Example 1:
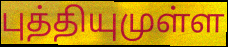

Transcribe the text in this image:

புத்தியுமுள்ள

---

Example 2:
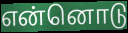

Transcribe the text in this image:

என்னொடு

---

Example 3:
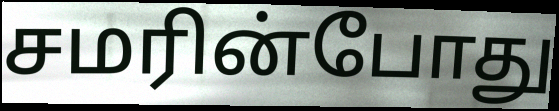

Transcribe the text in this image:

சமரின்போது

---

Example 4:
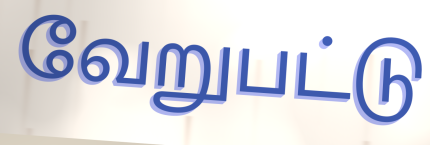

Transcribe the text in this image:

வேறுபட்டு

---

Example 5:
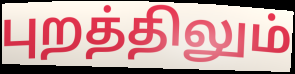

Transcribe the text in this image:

புறத்திலும்